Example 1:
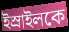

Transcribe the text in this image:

ইস্রাইলকে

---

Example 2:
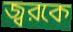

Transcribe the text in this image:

জ্বরকে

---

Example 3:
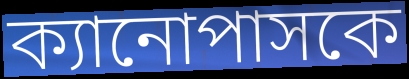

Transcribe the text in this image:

ক্যানোপাসকে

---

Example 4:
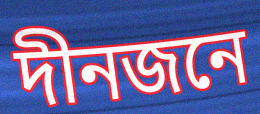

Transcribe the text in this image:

দীনজনে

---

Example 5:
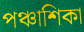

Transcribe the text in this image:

পঞ্চাশিকা